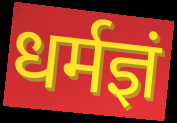
धर्मज्ञं